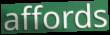
affords